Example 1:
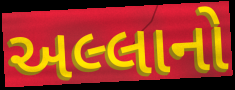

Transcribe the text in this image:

અલ્લાનો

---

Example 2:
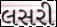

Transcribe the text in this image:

લસરી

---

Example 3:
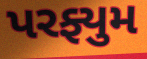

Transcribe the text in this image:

પરફ્યુમ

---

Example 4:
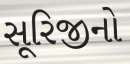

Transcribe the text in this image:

સૂરિજીનો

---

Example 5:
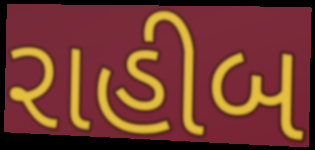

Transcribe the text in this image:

રાહીબ